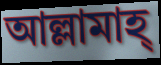
আল্লামাহ্